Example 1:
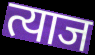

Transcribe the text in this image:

त्याज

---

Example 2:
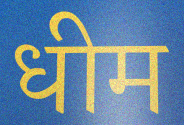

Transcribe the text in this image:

धीम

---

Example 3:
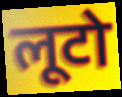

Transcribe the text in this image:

लूटो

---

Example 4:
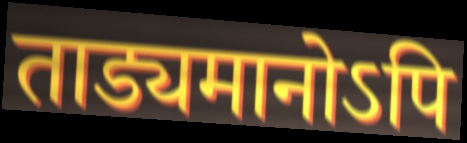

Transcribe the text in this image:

ताड्यमानोऽपि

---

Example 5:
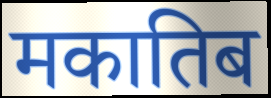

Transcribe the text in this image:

मकातिब